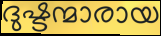
ദുഷ്ടന്മാരായ